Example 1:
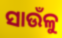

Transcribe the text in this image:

ସାଉଁଳୁ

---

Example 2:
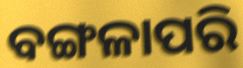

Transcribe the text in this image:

ବଙ୍ଗଳାପରି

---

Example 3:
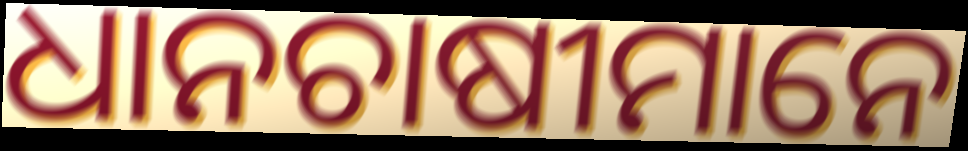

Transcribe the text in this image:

ଧାନଚାଷୀମାନେ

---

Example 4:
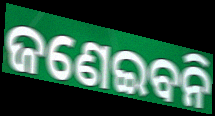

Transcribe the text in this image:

ଜଣେଇବନି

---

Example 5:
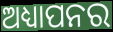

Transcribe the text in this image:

ଅଧ୍ୟାପନର